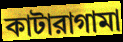
কাটারাগামা